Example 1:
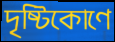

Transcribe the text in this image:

দৃষ্টিকোণে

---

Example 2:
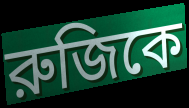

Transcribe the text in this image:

রুজিকে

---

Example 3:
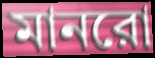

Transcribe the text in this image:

মানরো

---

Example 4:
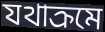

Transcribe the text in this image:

যথাক্রমে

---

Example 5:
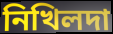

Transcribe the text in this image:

নিখিলদা